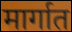
मार्गात